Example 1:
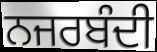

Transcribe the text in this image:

ਨਜਰਬੰਦੀ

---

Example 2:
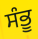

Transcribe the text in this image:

ਸੰਭੂ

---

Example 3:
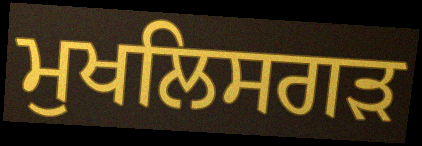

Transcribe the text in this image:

ਮੁਖਲਿਸਗੜ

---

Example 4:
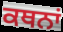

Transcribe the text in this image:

ਕਥਨਾਂ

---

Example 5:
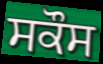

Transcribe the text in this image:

ਸਕੌਸ